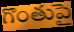
గొంతుపై